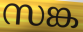
സങ്ക